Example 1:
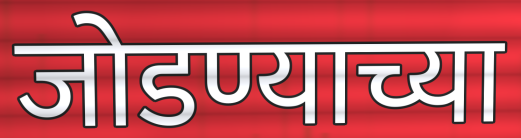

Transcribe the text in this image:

जोडण्याच्या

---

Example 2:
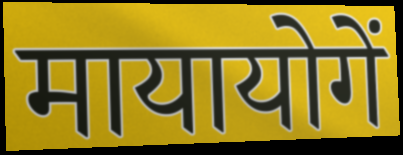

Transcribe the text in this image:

मायायोगें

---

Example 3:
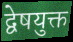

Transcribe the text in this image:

द्वेषयुक्त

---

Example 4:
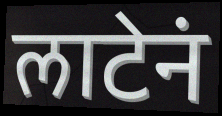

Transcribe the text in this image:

लाटेनं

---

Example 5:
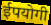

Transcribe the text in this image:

ईपयोगी